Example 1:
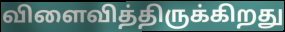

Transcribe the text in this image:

விளைவித்திருக்கிறது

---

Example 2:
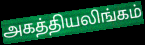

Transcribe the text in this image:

அகத்தியலிங்கம்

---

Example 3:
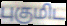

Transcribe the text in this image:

புகுமிட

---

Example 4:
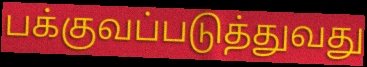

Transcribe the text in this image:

பக்குவப்படுத்துவது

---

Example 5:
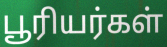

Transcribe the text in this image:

பூரியர்கள்